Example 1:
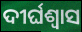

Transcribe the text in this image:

ଦୀର୍ଘଶ୍ଵାସ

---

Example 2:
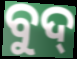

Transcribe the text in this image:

ବୁଦ୍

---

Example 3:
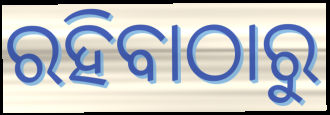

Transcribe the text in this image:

ରହିବାଠାରୁ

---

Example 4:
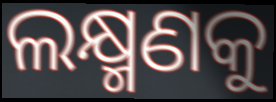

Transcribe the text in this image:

ଲକ୍ଷ୍ମଣକୁ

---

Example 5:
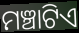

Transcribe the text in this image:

ମଞ୍ଚାଟିଏ